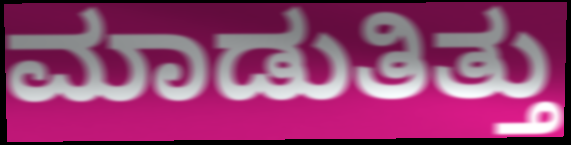
ಮಾಡುತಿತ್ತು